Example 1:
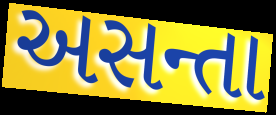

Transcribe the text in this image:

અસન્તા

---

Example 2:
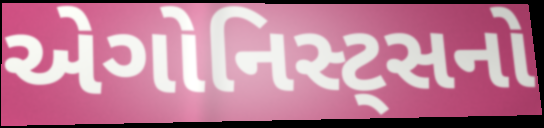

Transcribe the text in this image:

એગોનિસ્ટ્સનો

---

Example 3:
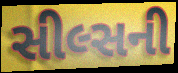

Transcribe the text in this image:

સીલ્સની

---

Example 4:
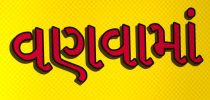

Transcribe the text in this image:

વણવામાં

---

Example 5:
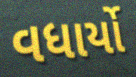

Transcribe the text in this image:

વધાર્યો